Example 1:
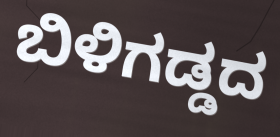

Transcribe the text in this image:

ಬಿಳಿಗಡ್ಡದ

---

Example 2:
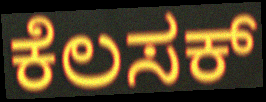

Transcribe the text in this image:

ಕೆಲಸಕ್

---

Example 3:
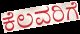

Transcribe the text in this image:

ಕೆಲವರಿಗೆ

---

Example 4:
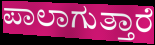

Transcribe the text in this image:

ಪಾಲಾಗುತ್ತಾರೆ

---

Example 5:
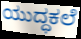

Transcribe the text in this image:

ಯುದ್ಧಕಲೆ